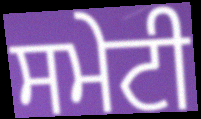
ਸਮੇਟੀ